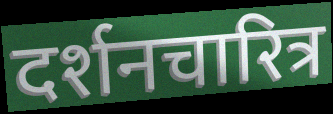
दर्शनचारित्र